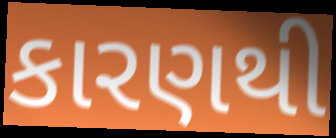
કારણથી